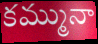
కమ్మునా